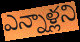
ఎన్నాళ్లని